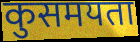
कुसमयता